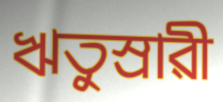
ঋতুস্ৰাৱী